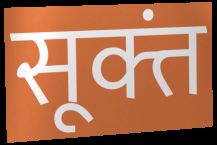
सूक्तं